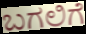
ಬಗಲಿಗೆ